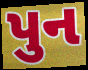
પુન